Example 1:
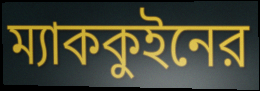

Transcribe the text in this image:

ম্যাককুইনের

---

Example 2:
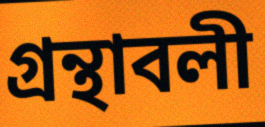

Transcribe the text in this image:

গ্রন্থাবলী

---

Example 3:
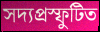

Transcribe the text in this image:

সদ্যপ্রস্ফুটিত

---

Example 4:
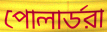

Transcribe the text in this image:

পোলার্ডরা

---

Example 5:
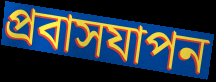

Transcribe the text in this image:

প্রবাসযাপন